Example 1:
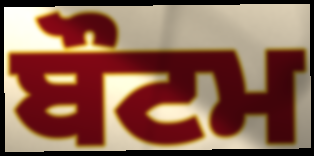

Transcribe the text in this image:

ਬੌਟਮ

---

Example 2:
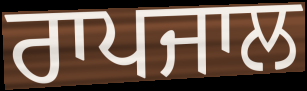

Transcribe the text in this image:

ਰਾਪਜਾਲ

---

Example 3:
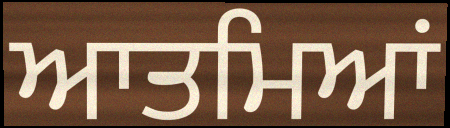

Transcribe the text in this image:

ਆਤਮਿਆਂ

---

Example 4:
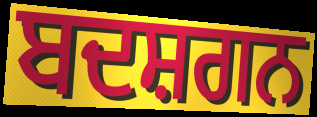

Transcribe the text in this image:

ਬਦਸ਼ਗਨ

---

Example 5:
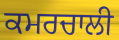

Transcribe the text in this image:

ਕਮਰਚਾਲੀ